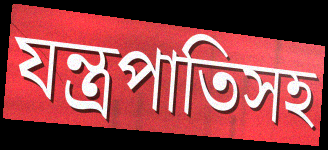
যন্ত্রপাতিসহ